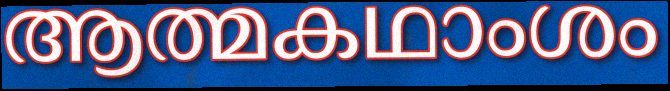
ആത്മകഥാംശം